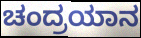
ಚಂದ್ರಯಾನ